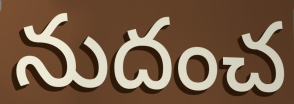
నుదంచ